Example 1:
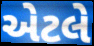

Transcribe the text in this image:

એેટલે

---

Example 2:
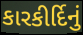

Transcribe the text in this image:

કારકીર્દિનું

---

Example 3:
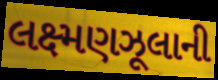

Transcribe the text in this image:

લક્ષ્મણઝૂલાની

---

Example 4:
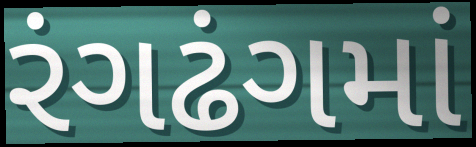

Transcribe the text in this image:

રંગઢંગમાં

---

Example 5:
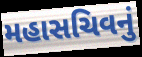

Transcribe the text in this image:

મહાસચિવનું